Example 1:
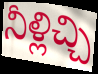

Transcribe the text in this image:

నీళ్లిచ్చి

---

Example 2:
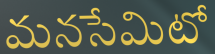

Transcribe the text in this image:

మనసేమిటో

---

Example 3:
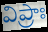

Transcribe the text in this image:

విప్రాః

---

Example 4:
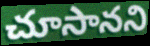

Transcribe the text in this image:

చూసానని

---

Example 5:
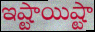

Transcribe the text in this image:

ఇష్టాయిష్టా